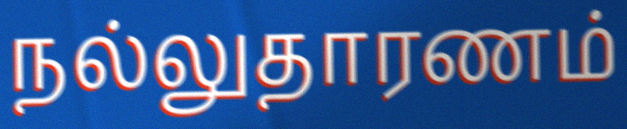
நல்லுதாரணம்